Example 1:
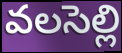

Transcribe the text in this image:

వలసెల్లి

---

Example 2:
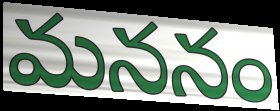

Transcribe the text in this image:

మననం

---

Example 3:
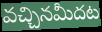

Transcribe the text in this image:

వచ్చినమీదట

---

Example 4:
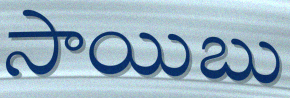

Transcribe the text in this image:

సాయిబు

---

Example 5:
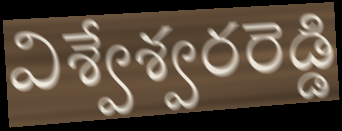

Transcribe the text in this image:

విశ్వేశ్వరరెడ్డి